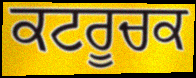
ਕਟਰੂਚਕ